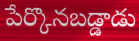
పేర్కొనబడ్డాడు